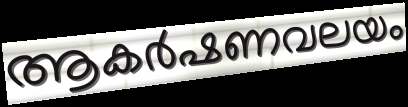
ആകർഷണവലയം